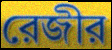
রেজীর